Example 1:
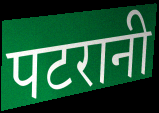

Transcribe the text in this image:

पटरानी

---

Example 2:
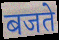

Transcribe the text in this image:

बजते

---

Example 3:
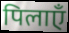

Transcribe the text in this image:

पिलाएँ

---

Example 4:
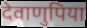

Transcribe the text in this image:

देवाणुपिया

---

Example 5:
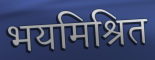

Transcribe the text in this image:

भयमिश्रित